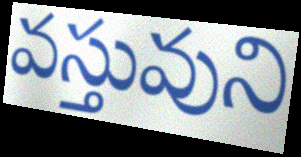
వస్తువుని